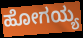
ಹೋಗಯ್ಯ